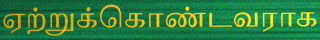
ஏற்றுக்கொண்டவராக